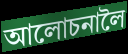
আলোচনালৈ